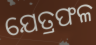
ଯେତ୍ରଫଳ